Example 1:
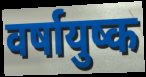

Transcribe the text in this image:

वर्षायुष्क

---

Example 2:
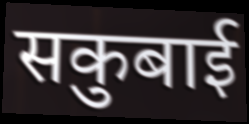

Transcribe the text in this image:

सकुबाई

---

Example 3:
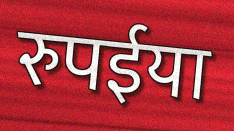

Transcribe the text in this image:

रुपईया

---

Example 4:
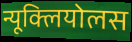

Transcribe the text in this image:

न्यूक्लियोलस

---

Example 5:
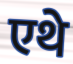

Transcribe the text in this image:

एथे